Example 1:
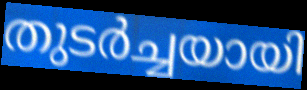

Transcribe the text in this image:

തുടർച്ചയായി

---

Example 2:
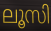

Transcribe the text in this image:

ലൂസി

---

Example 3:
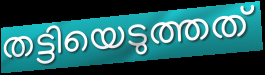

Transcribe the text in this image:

തട്ടിയെടുത്തത്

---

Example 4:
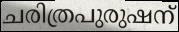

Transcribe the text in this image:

ചരിത്രപുരുഷന്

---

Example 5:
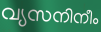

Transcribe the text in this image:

വ്യസനിനീം